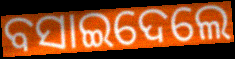
ବସାଇଦେଲେ